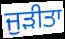
ਜੁੜੀਤਾ